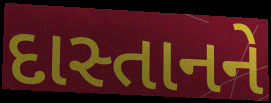
દાસ્તાનને